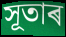
সূতাৰ